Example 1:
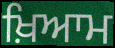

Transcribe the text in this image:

ਖ਼ਿਆਮ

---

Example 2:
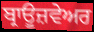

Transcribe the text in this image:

ਬ੍ਰਾਊਜ਼ਵੇਅਰ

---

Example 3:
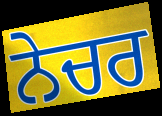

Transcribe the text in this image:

ਨੇਚਰ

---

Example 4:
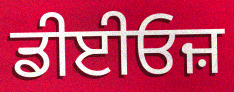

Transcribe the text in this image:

ਡੀਈਓਜ਼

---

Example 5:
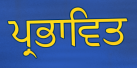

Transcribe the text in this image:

ਪ੍ਰਭਾਵਿਤ